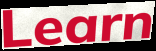
Learn